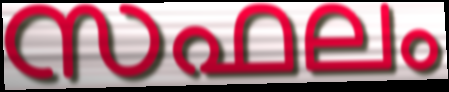
സഫലം